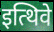
इत्थिवे